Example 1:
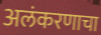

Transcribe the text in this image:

अलंकरणाचा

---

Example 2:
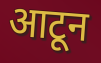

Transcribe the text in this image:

आटून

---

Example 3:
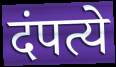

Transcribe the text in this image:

दंपत्ये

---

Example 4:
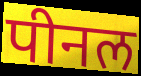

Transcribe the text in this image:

पीनल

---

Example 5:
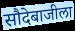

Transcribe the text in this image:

सौदेबाजीला